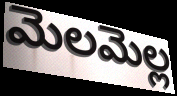
మెలమెల్ల